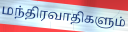
மந்திரவாதிகளும்